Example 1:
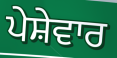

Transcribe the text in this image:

ਪੇਸ਼ੇਵਾਰ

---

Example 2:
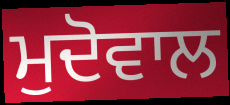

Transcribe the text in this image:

ਮੁਦੋਵਾਲ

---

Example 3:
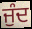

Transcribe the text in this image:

ਜੁੰਦ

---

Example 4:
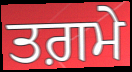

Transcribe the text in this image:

ਤਗ਼ਮੇ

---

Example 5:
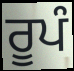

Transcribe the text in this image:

ਰੂਪੰ